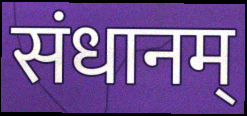
संधानम्